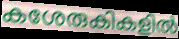
കശേരുകികളിൽ